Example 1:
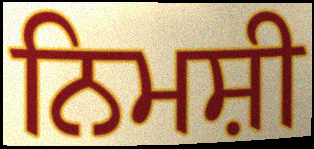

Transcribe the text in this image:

ਨਿਮਸ਼ੀ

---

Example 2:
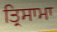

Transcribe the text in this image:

ਤ੍ਰਿਸਾਮਾ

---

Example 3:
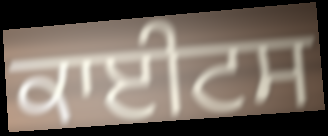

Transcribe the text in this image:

ਕਾਈਟਸ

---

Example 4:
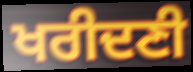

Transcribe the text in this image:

ਖਰੀਦਣੀ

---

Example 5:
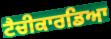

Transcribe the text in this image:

ਟੈਚੀਕਾਰਡਿਆ